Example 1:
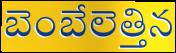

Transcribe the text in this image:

బెంబేలెత్తిన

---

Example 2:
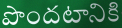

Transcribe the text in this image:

పొందటానికి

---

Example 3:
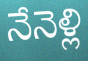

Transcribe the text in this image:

నేనెళ్లి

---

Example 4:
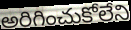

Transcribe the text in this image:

అరిగించుకోలేని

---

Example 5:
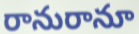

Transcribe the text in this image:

రానురానూ